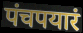
पंचपयारं